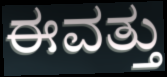
ಈವತ್ತು